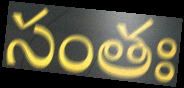
సంతః